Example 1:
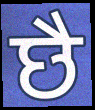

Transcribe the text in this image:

छै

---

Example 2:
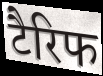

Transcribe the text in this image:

टैरिफ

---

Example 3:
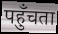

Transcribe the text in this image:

पहुँचता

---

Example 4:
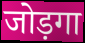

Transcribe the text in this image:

जोड़गा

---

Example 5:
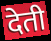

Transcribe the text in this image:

देती